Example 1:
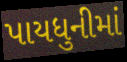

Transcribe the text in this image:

પાયધુનીમાં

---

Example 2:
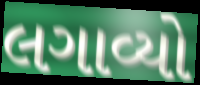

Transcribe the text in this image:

લગાવ્યો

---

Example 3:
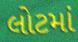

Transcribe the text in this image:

લોટમાં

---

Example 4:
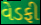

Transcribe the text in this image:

વેડફી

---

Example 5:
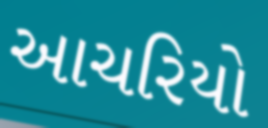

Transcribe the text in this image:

આચરિયો